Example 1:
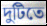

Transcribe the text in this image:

দুটিতে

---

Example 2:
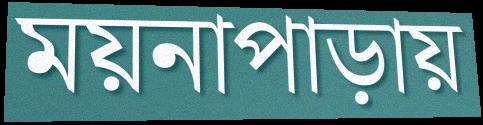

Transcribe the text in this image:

ময়নাপাড়ায়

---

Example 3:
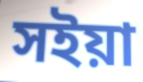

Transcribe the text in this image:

সইয়া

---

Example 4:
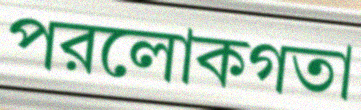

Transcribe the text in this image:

পরলোকগতা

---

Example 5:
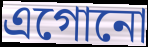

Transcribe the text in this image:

এগোনো